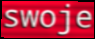
swoje